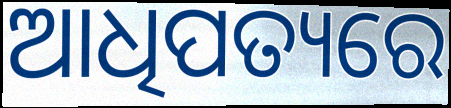
ଆଧିପତ୍ୟରେ